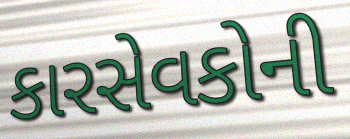
કારસેવકોની